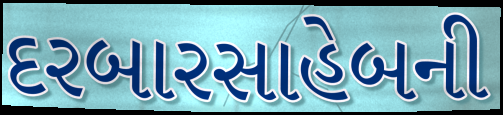
દરબારસાહેબની